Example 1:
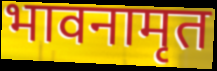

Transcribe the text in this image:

भावनामृत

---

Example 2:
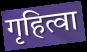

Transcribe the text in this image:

गृहित्वा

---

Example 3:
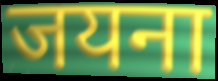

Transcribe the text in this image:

जयना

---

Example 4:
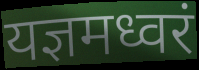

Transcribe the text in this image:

यज्ञमध्वरं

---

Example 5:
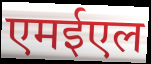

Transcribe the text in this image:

एमईएल